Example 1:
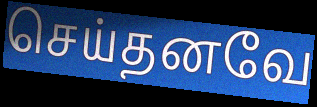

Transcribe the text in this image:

செய்தனவே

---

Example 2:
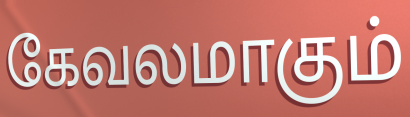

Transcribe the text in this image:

கேவலமாகும்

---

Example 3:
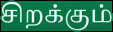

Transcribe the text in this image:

சிறக்கும்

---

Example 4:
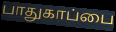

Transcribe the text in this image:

பாதுகாப்பை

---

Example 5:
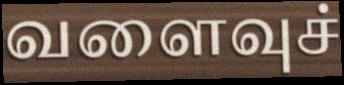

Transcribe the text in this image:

வளைவுச்